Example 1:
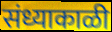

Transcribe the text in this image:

संध्याकाळी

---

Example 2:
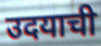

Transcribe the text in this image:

उदयाची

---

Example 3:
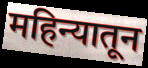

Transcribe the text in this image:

महिन्यातून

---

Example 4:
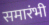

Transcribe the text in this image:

समारंभी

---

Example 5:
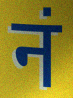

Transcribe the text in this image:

नं